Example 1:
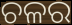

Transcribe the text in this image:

ଚଳର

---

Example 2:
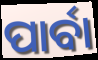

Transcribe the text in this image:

ପାର୍ବା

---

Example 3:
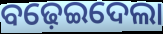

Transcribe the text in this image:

ବଢ଼େଇଦେଲା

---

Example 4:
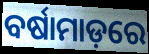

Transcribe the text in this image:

ବର୍ଷାମାଡ଼ରେ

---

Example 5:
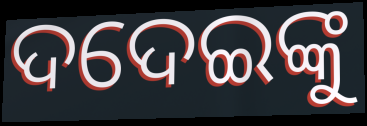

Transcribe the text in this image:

ଦଦେଇଙ୍କୁ